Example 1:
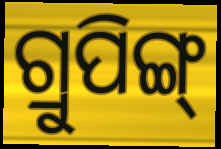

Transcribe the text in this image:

ଗ୍ରୁପିଙ୍ଗ୍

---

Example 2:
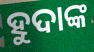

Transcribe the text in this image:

ହୁଦାଙ୍କ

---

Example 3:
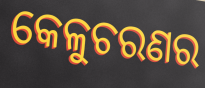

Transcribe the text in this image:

କେଳୁଚରଣର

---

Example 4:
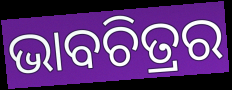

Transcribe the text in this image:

ଭାବଚିତ୍ରର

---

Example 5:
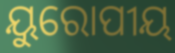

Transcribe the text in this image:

ୟୁରୋପୀୟ